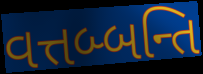
વત્તબ્બન્તિ